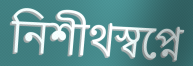
নিশীথস্বপ্নে